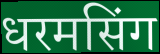
धरमसिंग